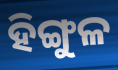
ହିଙ୍ଗୁଳ